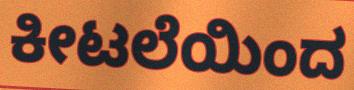
ಕೀಟಲೆಯಿಂದ